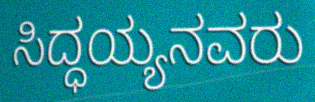
ಸಿದ್ಧಯ್ಯನವರು